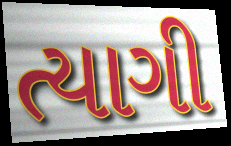
ત્યાગી